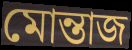
মোন্তাজ